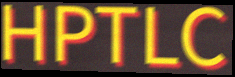
HPTLC